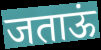
जताऊं